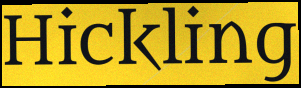
Hickling